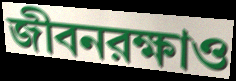
জীবনরক্ষাও